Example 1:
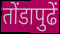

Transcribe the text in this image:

तोंडापुढें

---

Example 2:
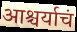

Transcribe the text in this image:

आश्चर्याचं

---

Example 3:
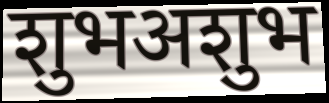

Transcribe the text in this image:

शुभअशुभ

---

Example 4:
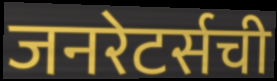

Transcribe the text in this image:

जनरेटर्सची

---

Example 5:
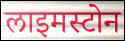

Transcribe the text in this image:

लाइमस्टोन